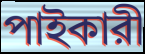
পাইকারী